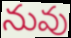
నువు